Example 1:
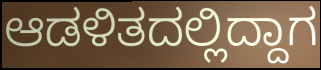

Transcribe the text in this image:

ಆಡಳಿತದಲ್ಲಿದ್ದಾಗ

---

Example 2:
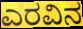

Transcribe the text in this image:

ಎರವಿನ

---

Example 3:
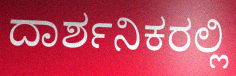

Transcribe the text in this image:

ದಾರ್ಶನಿಕರಲ್ಲಿ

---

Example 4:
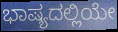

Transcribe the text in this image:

ಭಾಷ್ಯದಲ್ಲಿಯೇ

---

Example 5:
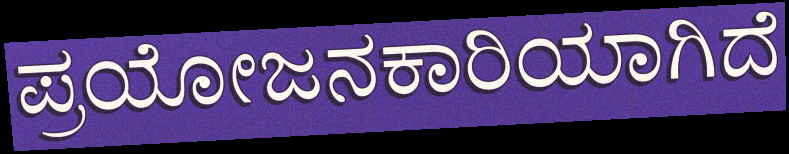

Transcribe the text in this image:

ಪ್ರಯೋಜನಕಾರಿಯಾಗಿದೆ